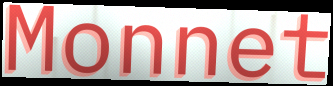
Monnet